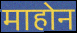
माहोन